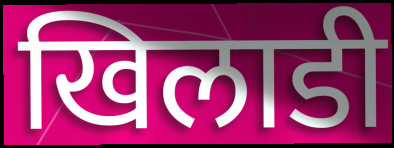
खिलाडी